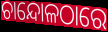
ଚାନ୍ଦୋଳଠାରେ